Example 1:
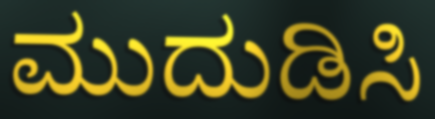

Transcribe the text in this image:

ಮುದುಡಿಸಿ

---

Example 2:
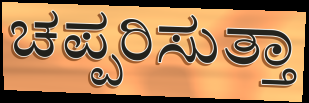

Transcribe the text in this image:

ಚಪ್ಪರಿಸುತ್ತಾ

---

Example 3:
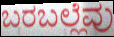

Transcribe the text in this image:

ಬರಬಲ್ಲೆವು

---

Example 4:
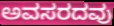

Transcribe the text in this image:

ಅವಸರದವು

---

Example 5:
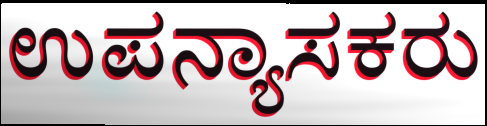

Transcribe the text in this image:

ಉಪನ್ಯಾಸಕರು